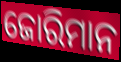
ଜୋରିମାନ